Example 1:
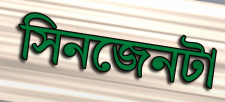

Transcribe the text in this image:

সিনজেনটা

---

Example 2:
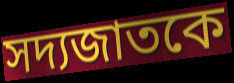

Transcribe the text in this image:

সদ্যজাতকে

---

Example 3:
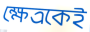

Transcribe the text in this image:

ক্ষেত্রকেই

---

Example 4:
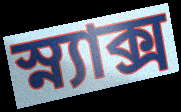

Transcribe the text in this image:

স্ন্যাক্স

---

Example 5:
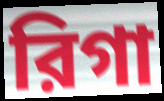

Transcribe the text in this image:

রিগা